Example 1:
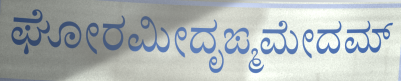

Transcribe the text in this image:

ಘೋರಮೀದೃಙ್ಮಮೇದಮ್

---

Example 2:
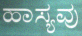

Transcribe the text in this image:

ಹಾಸ್ಯವು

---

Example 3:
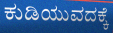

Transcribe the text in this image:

ಕುಡಿಯುವದಕ್ಕೆ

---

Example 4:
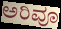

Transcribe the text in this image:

ಅರಿವೂ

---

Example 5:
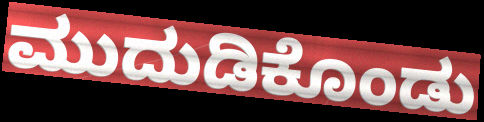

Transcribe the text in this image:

ಮುದುಡಿಕೊಂಡು